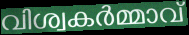
വിശ്വകർമ്മാവ്